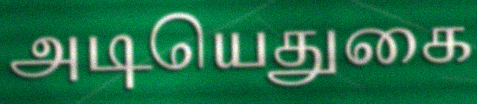
அடியெதுகை